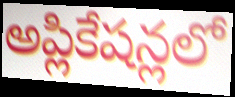
అప్లికేషన్లలో